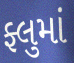
ફ્લુમાં